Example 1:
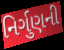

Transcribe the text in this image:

નિર્ગુણની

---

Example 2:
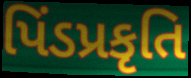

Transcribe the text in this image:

પિંડપ્રકૃતિ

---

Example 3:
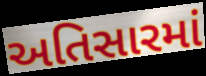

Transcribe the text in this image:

અતિસારમાં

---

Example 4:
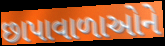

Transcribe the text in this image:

છાપાવાળાઓને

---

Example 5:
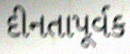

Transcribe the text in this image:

દીનતાપૂર્વક